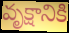
వృక్షానికి